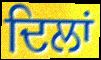
ਦਿਲਾਂ